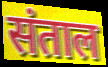
संताल